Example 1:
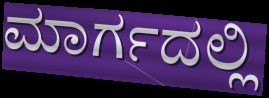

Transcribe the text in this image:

ಮಾರ್ಗದಲ್ಲಿ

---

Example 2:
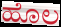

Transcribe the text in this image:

ಹೊಲ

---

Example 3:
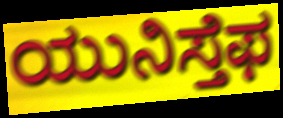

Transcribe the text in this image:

ಯುನಿಸ್ತೆಫ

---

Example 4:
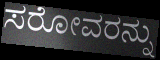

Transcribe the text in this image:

ಸರೋವರನ್ನು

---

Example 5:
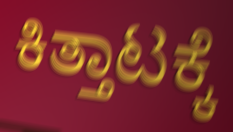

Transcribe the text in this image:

ಕಿತ್ತಾಟಕ್ಕೆ